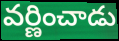
వర్ణించాడు